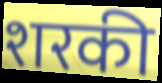
शरकी